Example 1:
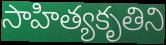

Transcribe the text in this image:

సాహిత్యకృతిని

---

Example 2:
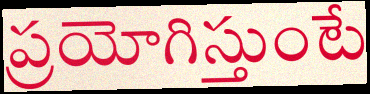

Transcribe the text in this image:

ప్రయోగిస్తుంటే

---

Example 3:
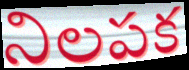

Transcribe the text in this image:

నిలపక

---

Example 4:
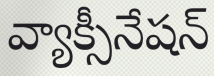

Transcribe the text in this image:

వ్యాక్సీనేషన్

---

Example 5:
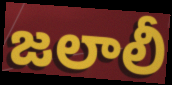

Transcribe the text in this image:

జలాలీ